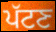
ਪੱਟਣ